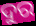
ଦୁର